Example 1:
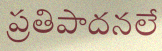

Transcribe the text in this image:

ప్రతిపాదనలే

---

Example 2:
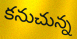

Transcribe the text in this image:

కనుచున్న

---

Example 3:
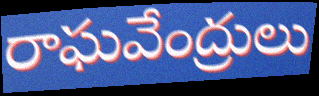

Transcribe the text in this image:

రాఘవేంద్రులు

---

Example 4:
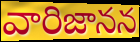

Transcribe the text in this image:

వారిజానన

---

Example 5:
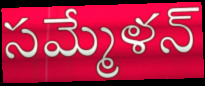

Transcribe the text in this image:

సమ్మేళన్